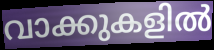
വാക്കുകളിൽ